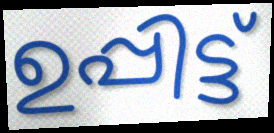
ഉപ്പിട്ട്